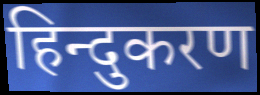
हिन्दुकरण